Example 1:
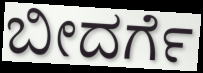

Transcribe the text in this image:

ಬೀದರ್ಗೆ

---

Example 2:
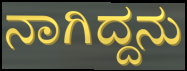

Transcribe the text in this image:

ನಾಗಿದ್ದನು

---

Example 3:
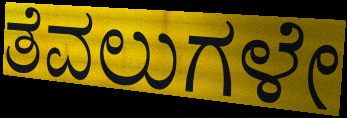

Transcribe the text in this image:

ತೆವಲುಗಳೇ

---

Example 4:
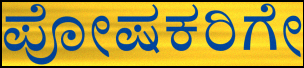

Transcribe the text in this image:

ಪೋಷಕರಿಗೇ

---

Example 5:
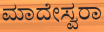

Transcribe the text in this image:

ಮಾದೇಸ್ವರಾ